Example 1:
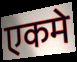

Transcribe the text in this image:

एकमे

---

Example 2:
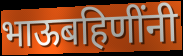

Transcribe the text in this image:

भाऊबहिणींनी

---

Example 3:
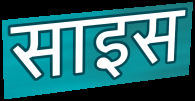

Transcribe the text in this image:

साइस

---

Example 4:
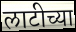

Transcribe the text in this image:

लाटीच्या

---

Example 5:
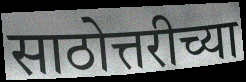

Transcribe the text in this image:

साठोत्तरीच्या